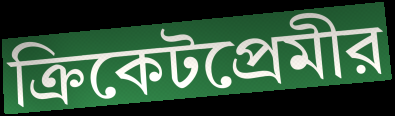
ক্রিকেটপ্রেমীর